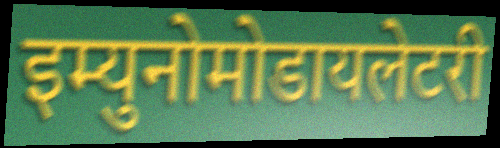
इम्युनोमोडायलेटरी